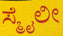
ಸ್ಮೈಲೀ